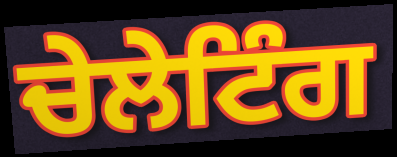
ਚੇਲੇਟਿੰਗ